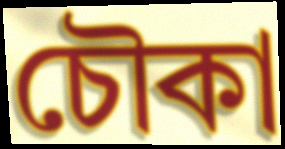
চৌকা